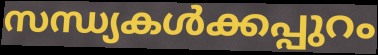
സന്ധ്യകൾക്കപ്പുറം